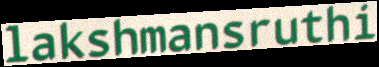
lakshmansruthi